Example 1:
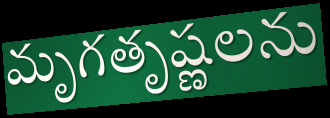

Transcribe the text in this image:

మృగతృష్ణలను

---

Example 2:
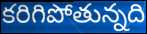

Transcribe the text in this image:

కరిగిపోతున్నది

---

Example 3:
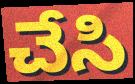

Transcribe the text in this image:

చేసి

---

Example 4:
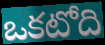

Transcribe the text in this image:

ఒకటోది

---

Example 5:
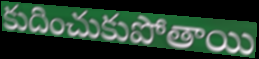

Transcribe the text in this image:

కుదించుకుపోతాయి